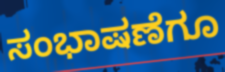
ಸಂಭಾಷಣೆಗೂ